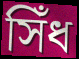
সিঁধ